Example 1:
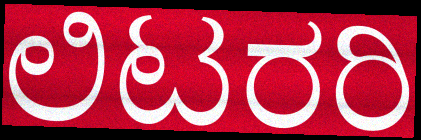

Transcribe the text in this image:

ಲಿಟರರಿ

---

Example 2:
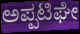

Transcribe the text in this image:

ಅಪ್ಪಟಿಘೇ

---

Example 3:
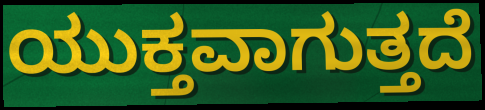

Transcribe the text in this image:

ಯುಕ್ತವಾಗುತ್ತದೆ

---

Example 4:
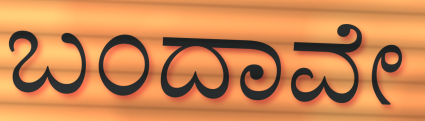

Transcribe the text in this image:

ಬಂದಾವೇ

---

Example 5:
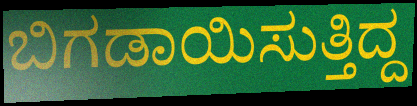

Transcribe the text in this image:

ಬಿಗಡಾಯಿಸುತ್ತಿದ್ದ